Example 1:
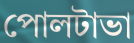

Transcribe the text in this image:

পোলটাভা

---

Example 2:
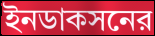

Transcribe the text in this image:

ইনডাকসনের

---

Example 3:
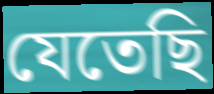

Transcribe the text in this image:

যেতেছি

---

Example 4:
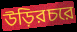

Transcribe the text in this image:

উড়িরচরে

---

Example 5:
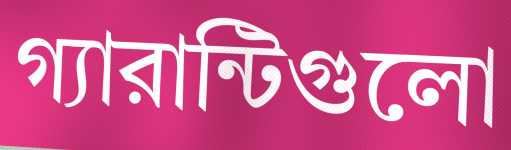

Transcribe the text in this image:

গ্যারান্টিগুলো